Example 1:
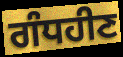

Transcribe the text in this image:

ਗੰਧਹੀਣ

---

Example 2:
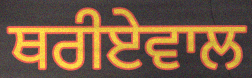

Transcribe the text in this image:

ਥਰੀਏਵਾਲ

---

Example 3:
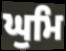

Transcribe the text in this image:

ਘੁਮਿ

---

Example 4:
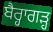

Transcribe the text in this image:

ਬੈਰ੍ਹਾਗੜ੍ਹ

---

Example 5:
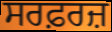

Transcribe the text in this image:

ਸਰਫ਼ਰਜ਼